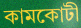
কামকোটী